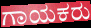
ಗಾಯಕರು